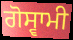
ਗੋਸ੍ਵਾਮੀ